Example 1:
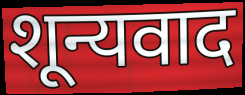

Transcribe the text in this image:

शून्यवाद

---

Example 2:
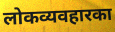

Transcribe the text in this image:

लोकव्यवहारका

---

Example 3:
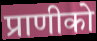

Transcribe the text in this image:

प्राणीको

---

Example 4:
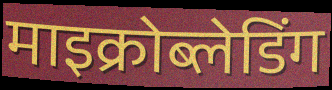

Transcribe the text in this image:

माइक्रोब्लेडिंग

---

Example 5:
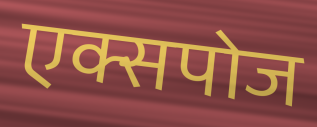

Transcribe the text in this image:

एक्सपोज